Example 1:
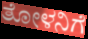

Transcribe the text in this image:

ತೋಳನಿಗೆ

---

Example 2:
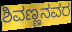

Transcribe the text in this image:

ಶಿವಣ್ಣನವರ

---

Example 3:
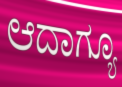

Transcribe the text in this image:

ಆದಾಗ್ಯೂ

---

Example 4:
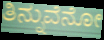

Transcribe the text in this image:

ತಿನ್ನುವೆನೋ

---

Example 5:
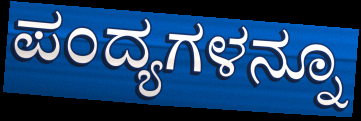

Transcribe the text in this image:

ಪಂದ್ಯಗಳನ್ನೂ